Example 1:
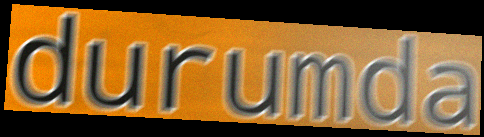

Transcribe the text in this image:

durumda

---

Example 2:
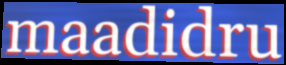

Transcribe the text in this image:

maadidru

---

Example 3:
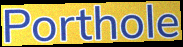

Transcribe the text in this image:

Porthole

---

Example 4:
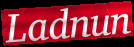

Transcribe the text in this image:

Ladnun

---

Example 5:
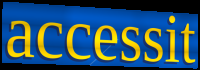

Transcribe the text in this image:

accessit